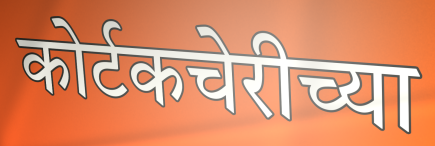
कोर्टकचेरीच्या